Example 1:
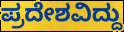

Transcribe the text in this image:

ಪ್ರದೇಶವಿದ್ದು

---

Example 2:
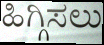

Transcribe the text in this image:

ಹಿಗ್ಗಿಸಲು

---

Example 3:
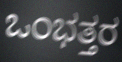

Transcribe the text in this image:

ಒಂಭತ್ತರ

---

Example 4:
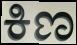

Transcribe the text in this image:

ಕಿಣ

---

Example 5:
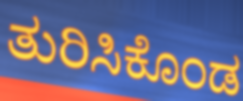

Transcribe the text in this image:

ತುರಿಸಿಕೊಂಡ